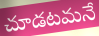
చూడటమనే